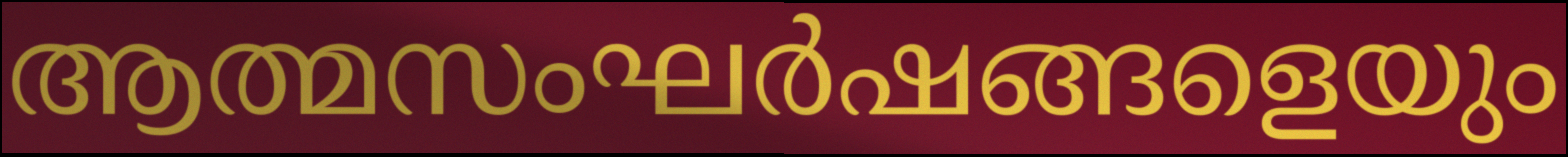
ആത്മസംഘർഷങ്ങളെയും